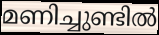
മണിച്ചുണ്ടിൽ